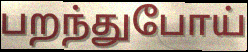
பறந்துபோய்